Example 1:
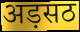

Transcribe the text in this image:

अड़सठ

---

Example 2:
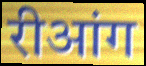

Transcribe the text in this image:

रीआंग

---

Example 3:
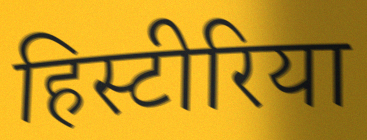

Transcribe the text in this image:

हिस्टीरिया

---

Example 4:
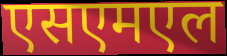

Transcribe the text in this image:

एसएमएल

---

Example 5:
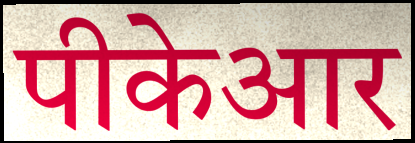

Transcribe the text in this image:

पीकेआर